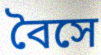
বৈসে